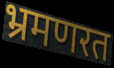
भ्रमणरत